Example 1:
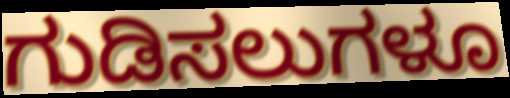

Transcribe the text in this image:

ಗುಡಿಸಲುಗಳೂ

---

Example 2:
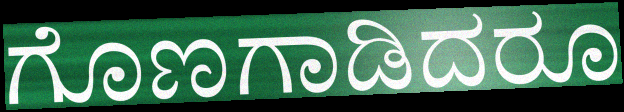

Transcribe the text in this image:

ಗೊಣಗಾಡಿದರೂ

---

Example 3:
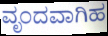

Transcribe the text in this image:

ವೃಂದವಾಗಿಹ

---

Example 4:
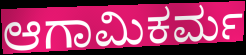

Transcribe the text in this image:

ಆಗಾಮಿಕರ್ಮ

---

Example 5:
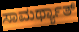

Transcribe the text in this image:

ಸಾಮರ್ಥ್ಯಾತ್